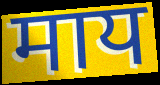
माय